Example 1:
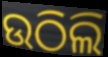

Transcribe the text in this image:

ଉଠିଲି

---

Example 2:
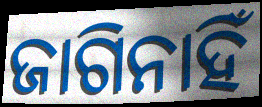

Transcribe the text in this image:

ଜାଗିନାହିଁ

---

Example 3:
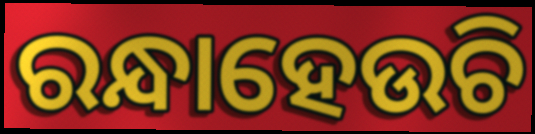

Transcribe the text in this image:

ରନ୍ଧାହେଉଚି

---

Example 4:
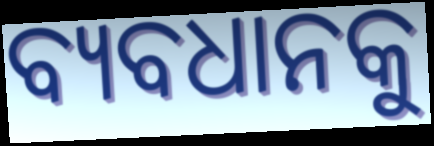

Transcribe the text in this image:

ବ୍ୟବଧାନକୁ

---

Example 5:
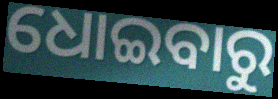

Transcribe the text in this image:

ଧୋଇବାରୁ